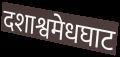
दशाश्वमेधघाट